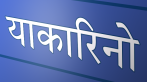
याकारिनो